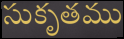
సుకృతము